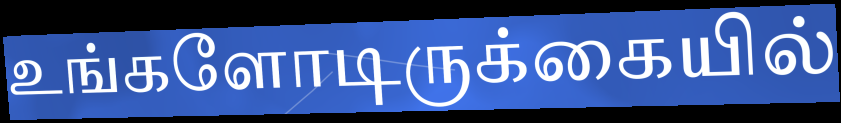
உங்களோடிருக்கையில்